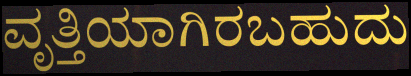
ವೃತ್ತಿಯಾಗಿರಬಹುದು